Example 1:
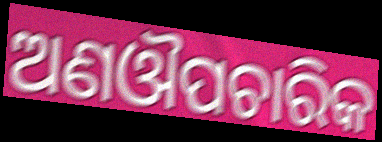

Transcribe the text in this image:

ଅଣଔପଚାରିକ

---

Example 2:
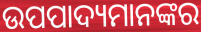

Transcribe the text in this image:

ଉପପାଦ୍ୟମାନଙ୍କର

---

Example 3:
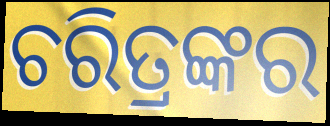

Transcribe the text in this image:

ଚରିତ୍ରଙ୍କର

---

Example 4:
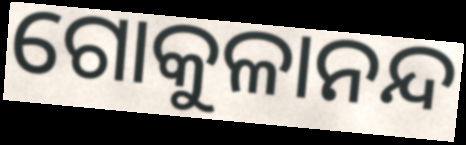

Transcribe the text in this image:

ଗୋକୁଳାନନ୍ଦ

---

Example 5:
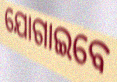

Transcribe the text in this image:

ଯୋଗାଇବେ